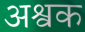
अश्वक